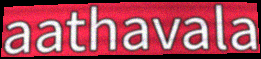
aathavala